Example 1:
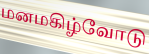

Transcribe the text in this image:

மனமகிழ்வோடு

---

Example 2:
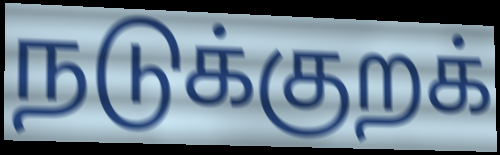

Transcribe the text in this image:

நடுக்குறக்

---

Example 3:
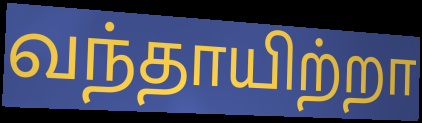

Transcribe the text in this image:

வந்தாயிற்றா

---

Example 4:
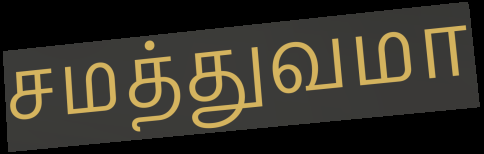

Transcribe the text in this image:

சமத்துவமா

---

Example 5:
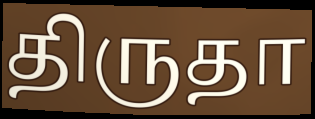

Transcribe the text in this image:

திருதா